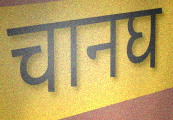
चानघ